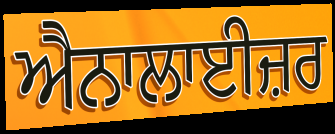
ਐਨਾਲਾਈਜ਼ਰ